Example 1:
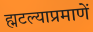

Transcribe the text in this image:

ह्मटल्याप्रमाणें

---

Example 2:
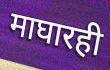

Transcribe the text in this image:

माघारही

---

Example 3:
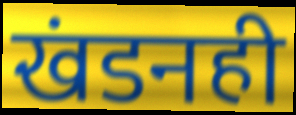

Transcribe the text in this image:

खंडनही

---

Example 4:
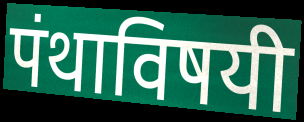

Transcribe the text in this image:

पंथाविषयी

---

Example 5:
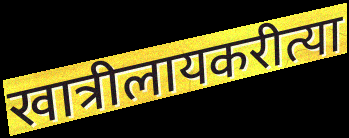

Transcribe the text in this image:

खात्रीलायकरीत्या